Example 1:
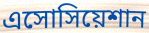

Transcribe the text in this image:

এসোসিয়েশান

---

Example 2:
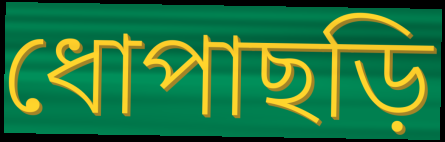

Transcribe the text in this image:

ধোপাছড়ি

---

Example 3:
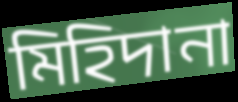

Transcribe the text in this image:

মিহিদানা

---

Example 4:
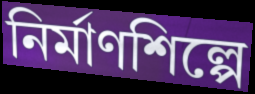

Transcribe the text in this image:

নির্মাণশিল্পে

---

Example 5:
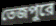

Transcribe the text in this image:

তেজপুরে